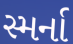
સ્મર્ના